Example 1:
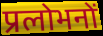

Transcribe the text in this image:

प्रलोभनों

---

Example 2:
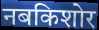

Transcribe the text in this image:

नबकिशोर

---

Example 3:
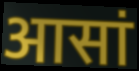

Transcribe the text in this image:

आसां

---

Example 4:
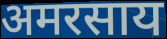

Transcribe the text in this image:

अमरसाय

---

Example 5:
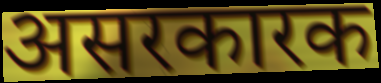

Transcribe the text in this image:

असरकारक